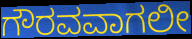
ಗೌರವವಾಗಲೀ